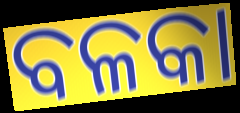
ବଳକା